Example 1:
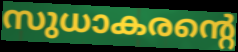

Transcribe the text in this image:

സുധാകരന്റെ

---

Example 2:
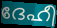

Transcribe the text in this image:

ദേഹീ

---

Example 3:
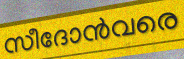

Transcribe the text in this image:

സീദോൻവരെ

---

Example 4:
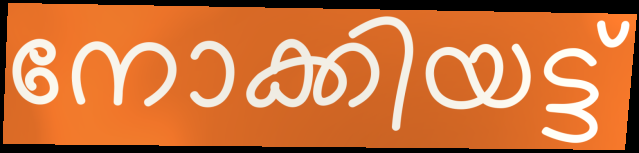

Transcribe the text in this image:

നോക്കിയട്ട്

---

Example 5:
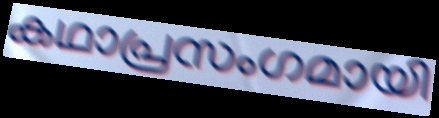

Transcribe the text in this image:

കഥാപ്രസംഗമായി